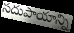
సదుపాయాన్ని